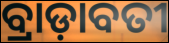
ବ୍ରାଡ଼ାବତୀ